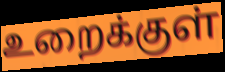
உறைக்குள்